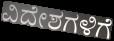
ವಿದೇಶಗಳಿಗೆ